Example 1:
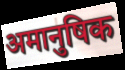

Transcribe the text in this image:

अमानुषिक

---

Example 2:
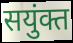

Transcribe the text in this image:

सयुंक्त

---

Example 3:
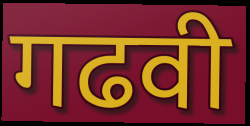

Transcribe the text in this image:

गढवी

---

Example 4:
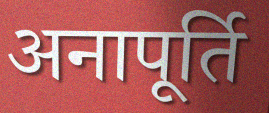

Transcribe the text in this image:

अनापूर्ति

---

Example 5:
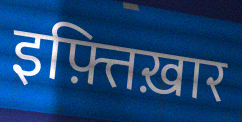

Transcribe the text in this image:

इफ़्तिख़ार